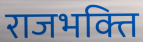
राजभक्ति